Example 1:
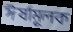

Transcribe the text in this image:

ঈর্ষামূলক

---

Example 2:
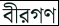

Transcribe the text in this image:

বীরগণ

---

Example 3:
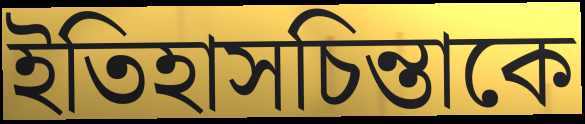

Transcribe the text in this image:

ইতিহাসচিন্তাকে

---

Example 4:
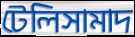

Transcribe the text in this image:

টেলিসামাদ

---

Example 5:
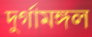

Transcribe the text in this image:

দুর্গামঙ্গল